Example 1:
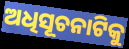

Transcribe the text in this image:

ଅଧିସୂଚନାଟିକୁ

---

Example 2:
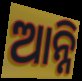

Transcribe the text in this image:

ଆନ୍ନି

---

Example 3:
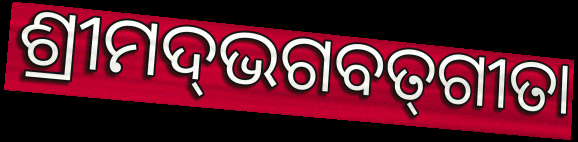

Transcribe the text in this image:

ଶ୍ରୀମଦ୍‌ଭଗବତ୍‌ଗୀତା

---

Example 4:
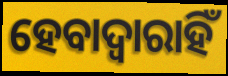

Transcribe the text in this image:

ହେବାଦ୍ଵାରାହିଁ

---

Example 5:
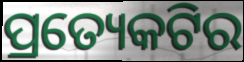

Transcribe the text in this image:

ପ୍ରତ୍ୟେକଟିର